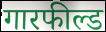
गारफील्ड